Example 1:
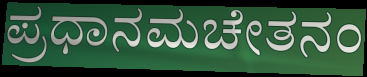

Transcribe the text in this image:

ಪ್ರಧಾನಮಚೇತನಂ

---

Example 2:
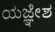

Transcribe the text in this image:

ಯಜ್ಞೇಶ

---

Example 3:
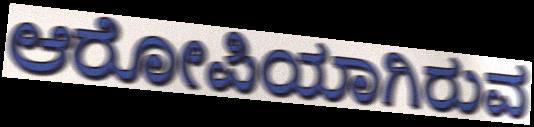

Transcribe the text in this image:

ಆರೋಪಿಯಾಗಿರುವ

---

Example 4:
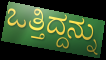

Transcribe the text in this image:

ಒತ್ತಿದ್ದನ್ನು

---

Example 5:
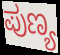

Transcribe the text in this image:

ಪುಣ್ಯ